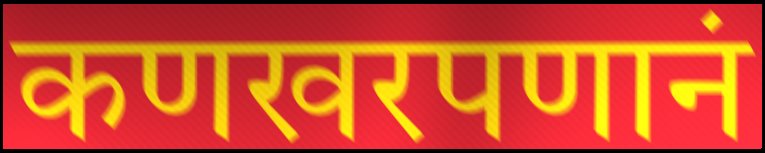
कणखरपणानं